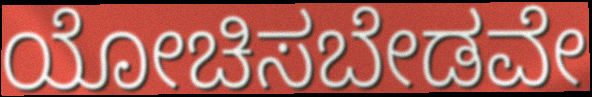
ಯೋಚಿಸಬೇಡವೇ